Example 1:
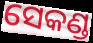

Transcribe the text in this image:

ସେକଣ୍ଡ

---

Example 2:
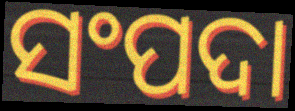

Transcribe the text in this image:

ସଂପଦା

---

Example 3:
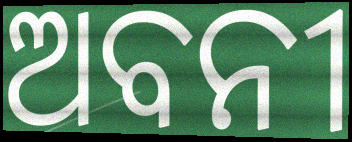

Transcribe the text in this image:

ଅବନୀ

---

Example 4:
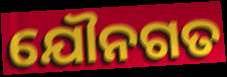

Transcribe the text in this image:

ଯୌନଗତ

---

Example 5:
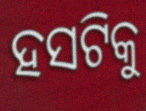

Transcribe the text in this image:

ହସଟିକୁ